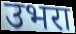
उभरा